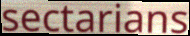
sectarians